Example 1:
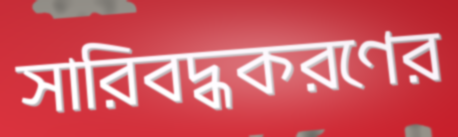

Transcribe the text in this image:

সারিবদ্ধকরণের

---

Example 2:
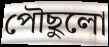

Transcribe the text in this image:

পৌছুলো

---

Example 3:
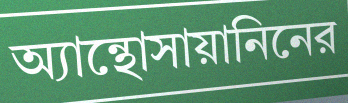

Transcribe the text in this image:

অ্যান্থোসায়ানিনের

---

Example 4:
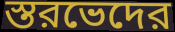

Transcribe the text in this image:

স্তরভেদের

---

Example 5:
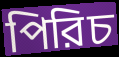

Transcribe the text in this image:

পিরিচ